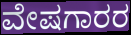
ವೇಷಗಾರರ